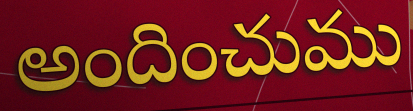
అందించుము